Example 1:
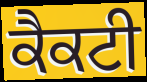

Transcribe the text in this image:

ਕੈਕਟੀ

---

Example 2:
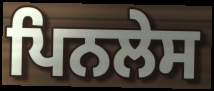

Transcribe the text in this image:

ਪਿਨਲੇਸ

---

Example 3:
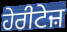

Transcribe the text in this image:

ਹੇਰੀਟੇਜ਼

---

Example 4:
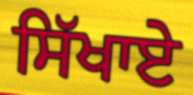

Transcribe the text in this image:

ਸਿੱਖਾਏ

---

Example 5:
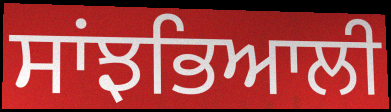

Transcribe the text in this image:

ਸਾਂਝਭਿਆਲੀ